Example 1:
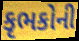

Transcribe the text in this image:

કૃભકોની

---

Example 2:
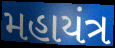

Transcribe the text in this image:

મહાયંત્ર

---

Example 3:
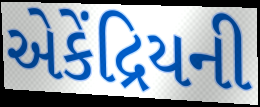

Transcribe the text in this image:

એકેંદ્રિયની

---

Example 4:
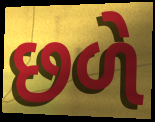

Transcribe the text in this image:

છળે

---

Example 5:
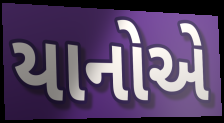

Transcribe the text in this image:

યાનોએ